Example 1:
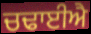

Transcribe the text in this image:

ਚਢਾਈਐ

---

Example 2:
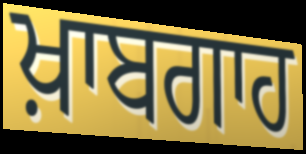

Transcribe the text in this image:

ਖ਼ਾਬਗਾਹ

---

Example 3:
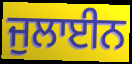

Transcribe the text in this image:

ਜੁਲਾਈਨ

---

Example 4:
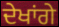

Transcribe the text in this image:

ਦੇਖਾਂਗੇ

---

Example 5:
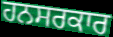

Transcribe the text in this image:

ਹਨਸਰਕਾਰ